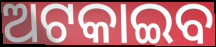
ଅଟକାଇବ